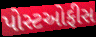
પોસ્ટઓફીસ